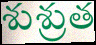
శుశ్రుత